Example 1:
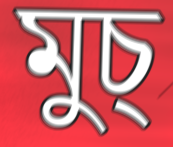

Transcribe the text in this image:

মুচ্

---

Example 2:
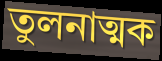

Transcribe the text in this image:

তুলনাত্মক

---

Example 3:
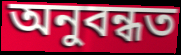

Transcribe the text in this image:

অনুবন্ধত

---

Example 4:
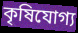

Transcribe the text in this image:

কৃষিযোগ্য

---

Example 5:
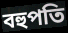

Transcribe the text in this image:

বহুপতি